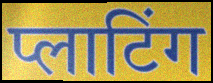
प्लाटिंग